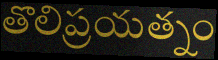
తొలిప్రయత్నం